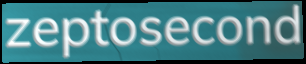
zeptosecond